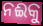
ନଈକୁ